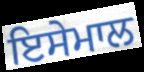
ਇਸੇਮਾਲ